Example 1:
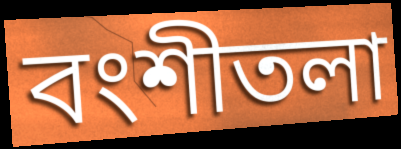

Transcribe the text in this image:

বংশীতলা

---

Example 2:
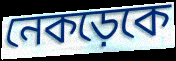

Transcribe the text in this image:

নেকড়েকে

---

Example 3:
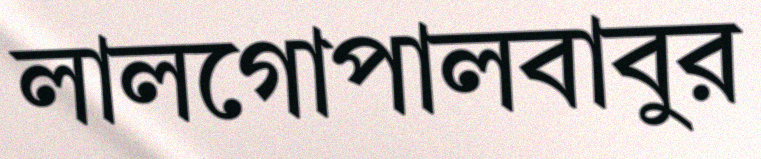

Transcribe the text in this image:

লালগোপালবাবুর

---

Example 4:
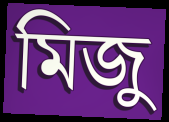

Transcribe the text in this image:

মিজু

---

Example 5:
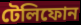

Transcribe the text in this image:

টেলিফোন